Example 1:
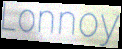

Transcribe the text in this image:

Lonnoy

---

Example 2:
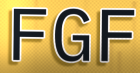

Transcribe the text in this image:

FGF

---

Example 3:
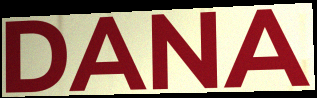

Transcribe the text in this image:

DANA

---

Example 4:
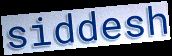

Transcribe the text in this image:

siddesh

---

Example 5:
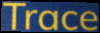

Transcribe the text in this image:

Trace